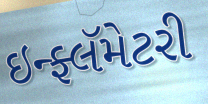
ઇન્ફ્લૅમેટરી